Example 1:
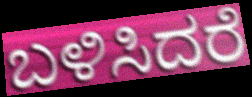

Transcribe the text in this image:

ಬಳಿಸಿದರೆ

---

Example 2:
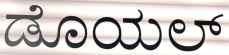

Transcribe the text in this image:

ಡೊಯಲ್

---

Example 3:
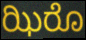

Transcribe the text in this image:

ಝಿರೊ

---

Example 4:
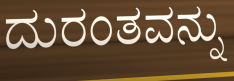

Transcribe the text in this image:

ದುರಂತವನ್ನು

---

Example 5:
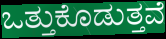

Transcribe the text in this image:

ಒತ್ತುಕೊಡುತ್ತವೆ